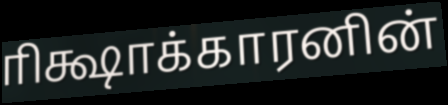
ரிக்ஷாக்காரனின்